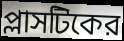
প্লাসটিকের